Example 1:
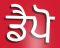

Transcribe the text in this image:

ਡੈਪੋ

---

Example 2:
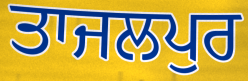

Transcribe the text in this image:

ਤਾਜਲਪੁਰ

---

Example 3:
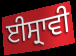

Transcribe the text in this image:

ਈਸ੍ਰਾਵੀ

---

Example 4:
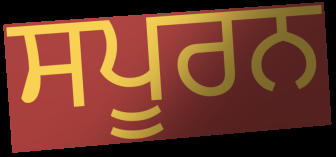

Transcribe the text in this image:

ਸਪੂਰਨ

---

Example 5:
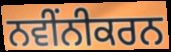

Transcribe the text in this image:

ਨਵੀਂਨੀਕਰਨ